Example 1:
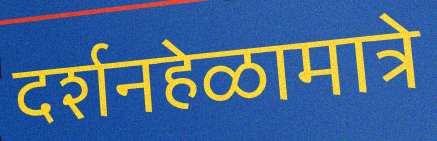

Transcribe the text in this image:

दर्शनहेळामात्रे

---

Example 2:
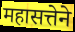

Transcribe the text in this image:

महासत्तेने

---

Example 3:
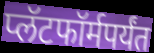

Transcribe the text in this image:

प्लॅटफॉर्मपर्यंत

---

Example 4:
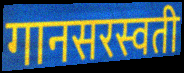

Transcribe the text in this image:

गानसरस्वती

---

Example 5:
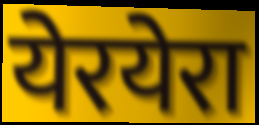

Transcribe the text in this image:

येरयेरा